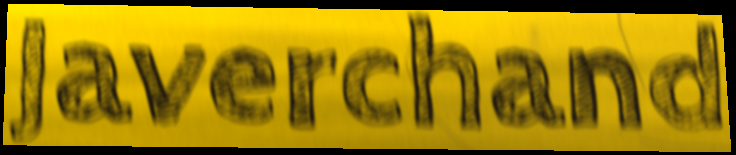
Javerchand